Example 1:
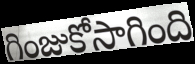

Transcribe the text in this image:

గింజుకోసాగింది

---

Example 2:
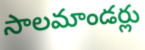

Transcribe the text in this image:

సాలమాండర్లు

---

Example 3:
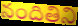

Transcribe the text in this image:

నందితిని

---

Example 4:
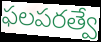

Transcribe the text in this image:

ఫలపరత్వే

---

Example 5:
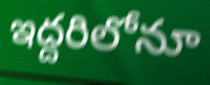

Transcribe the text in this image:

ఇద్దరిలోనూ